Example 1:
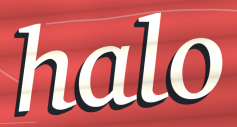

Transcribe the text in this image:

halo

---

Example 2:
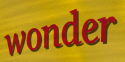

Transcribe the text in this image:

wonder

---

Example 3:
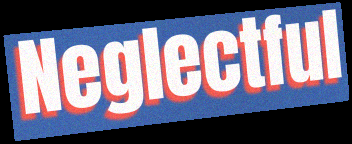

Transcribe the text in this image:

Neglectful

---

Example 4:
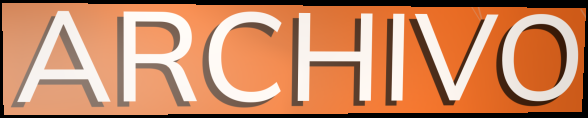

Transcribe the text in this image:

ARCHIVO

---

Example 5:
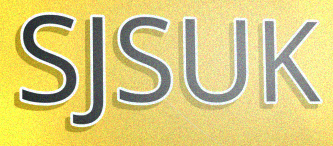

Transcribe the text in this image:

SJSUK